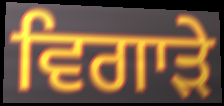
ਵਿਗਾੜੇ